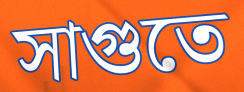
সাগুতে